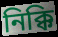
নিক্কি